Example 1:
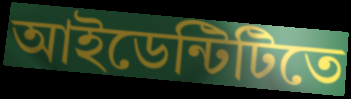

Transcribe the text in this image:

আইডেন্টিটিতে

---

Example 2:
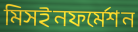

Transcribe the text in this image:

মিসইনফর্মেশন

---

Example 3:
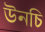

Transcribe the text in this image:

উনচি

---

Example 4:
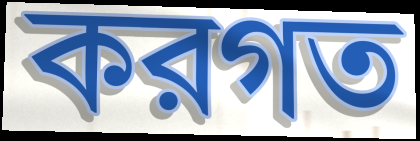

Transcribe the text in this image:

করগত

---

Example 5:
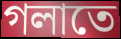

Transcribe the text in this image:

গলাতে